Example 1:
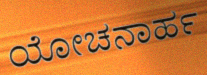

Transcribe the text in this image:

ಯೋಚನಾರ್ಹ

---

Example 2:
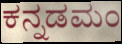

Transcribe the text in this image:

ಕನ್ನಡಮಂ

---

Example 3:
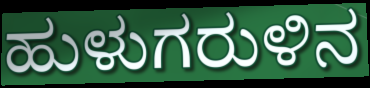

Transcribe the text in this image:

ಹುಳುಗರುಳಿನ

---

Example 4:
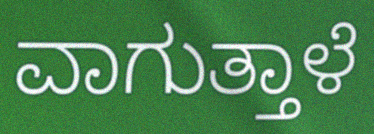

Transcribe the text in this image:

ವಾಗುತ್ತಾಳೆ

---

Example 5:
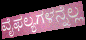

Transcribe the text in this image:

ವೈಫಲ್ಯಗಳನ್ನೆಲ್ಲ